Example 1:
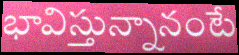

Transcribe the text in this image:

భావిస్తున్నానంటే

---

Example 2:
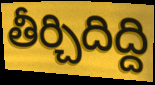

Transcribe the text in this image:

తీర్చిదిద్ది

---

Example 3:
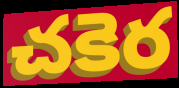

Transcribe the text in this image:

చకెర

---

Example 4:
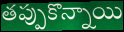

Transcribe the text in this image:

తప్పుకొన్నాయి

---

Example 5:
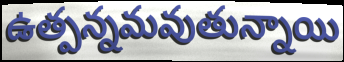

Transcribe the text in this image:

ఉత్పన్నమవుతున్నాయి